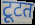
टूटत